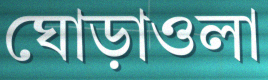
ঘোড়াওলা